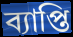
ব্যাপ্তি